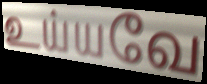
உய்யவே